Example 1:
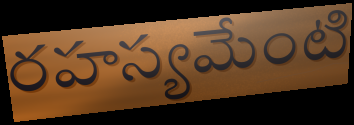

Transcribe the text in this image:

రహస్యమేంటి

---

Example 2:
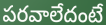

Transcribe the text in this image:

పరవాలేదంటే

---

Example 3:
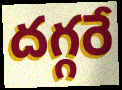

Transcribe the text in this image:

దగ్గరే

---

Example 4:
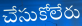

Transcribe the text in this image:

చేసుకోలేరు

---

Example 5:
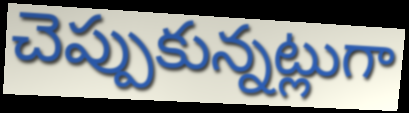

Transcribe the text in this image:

చెప్పుకున్నట్లుగా